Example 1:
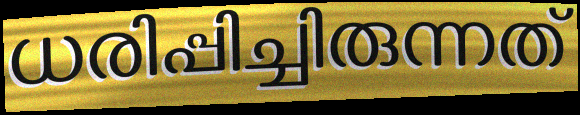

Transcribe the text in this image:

ധരിപ്പിച്ചിരുന്നത്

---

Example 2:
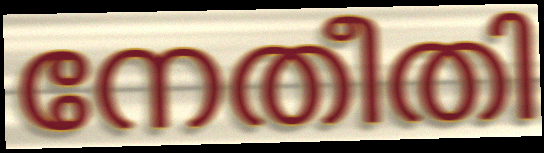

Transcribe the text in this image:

നേതീതി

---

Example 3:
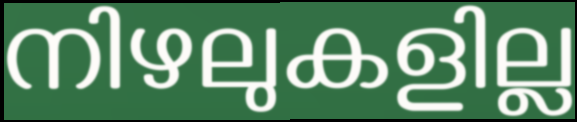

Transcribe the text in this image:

നിഴലുകളില്ല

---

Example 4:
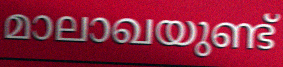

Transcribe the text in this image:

മാലാഖയുണ്ട്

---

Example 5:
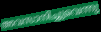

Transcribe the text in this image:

അവസാനിച്ചുവെന്നു